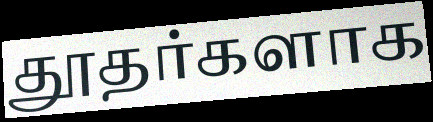
தூதர்களாக